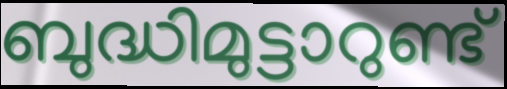
ബുദ്ധിമുട്ടാറുണ്ട്